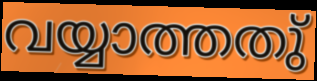
വയ്യാത്തതു്